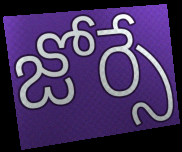
జోర్సే